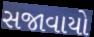
સજાવાયો